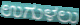
ಉಗುಳಲು